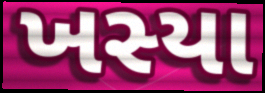
ખસ્યા